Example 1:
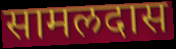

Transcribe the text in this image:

सामलदास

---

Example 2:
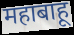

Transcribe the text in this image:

महाबाहू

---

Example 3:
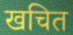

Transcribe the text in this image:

खचित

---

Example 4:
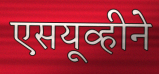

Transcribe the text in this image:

एसयूव्हीने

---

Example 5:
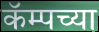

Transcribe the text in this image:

कॅम्पच्या